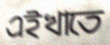
এইখাতে